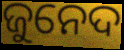
ଜୁନେଦ